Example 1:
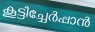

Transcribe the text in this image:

കൂട്ടിച്ചേർപ്പാൻ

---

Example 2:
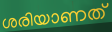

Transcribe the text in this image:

ശരിയാണത്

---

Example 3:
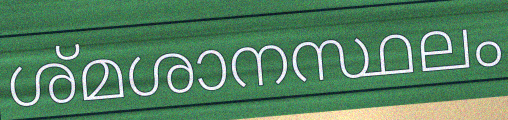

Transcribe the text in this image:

ശ്മശാനസ്ഥലം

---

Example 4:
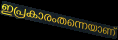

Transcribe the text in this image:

ഇപ്രകാരംതന്നെയാണ്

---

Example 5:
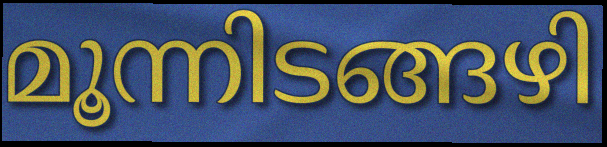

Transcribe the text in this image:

മൂന്നിടങ്ങഴി